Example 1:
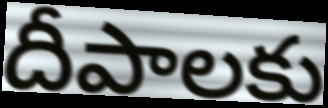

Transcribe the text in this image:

దీపాలకు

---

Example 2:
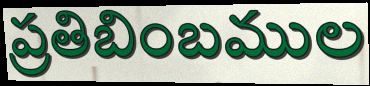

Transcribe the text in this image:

ప్రతిబింబముల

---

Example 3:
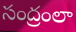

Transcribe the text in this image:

సంద్రంలా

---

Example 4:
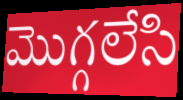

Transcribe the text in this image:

మొగ్గలేసి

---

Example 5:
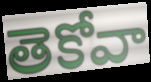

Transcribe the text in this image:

తెకోవా